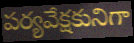
పర్యవేక్షకునిగా